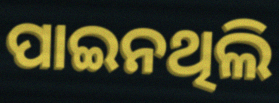
ପାଇନଥିଲି